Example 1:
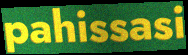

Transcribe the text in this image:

pahissasi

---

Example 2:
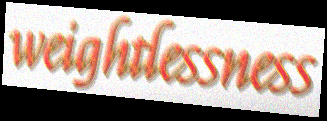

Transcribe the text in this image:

weightlessness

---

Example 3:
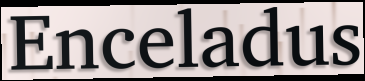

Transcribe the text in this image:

Enceladus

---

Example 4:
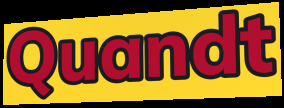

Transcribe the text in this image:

Quandt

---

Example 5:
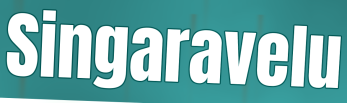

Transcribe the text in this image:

Singaravelu